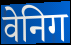
वेनिग